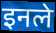
इनले